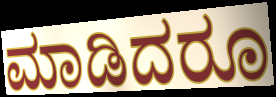
ಮಾಡಿದರೂ